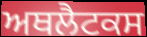
ਅਥਲੈਟਕਸ